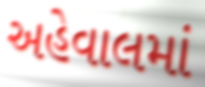
અહેવાલમાં